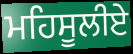
ਮਹਿਸੂਲੀਏ